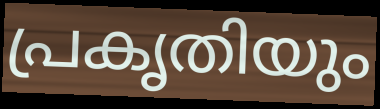
പ്രകൃതിയും